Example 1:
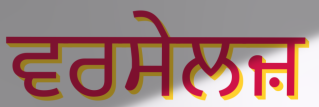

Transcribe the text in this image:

ਵਰਸੇਲਜ਼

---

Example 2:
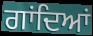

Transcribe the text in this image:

ਗਾਂਦਿਆਂ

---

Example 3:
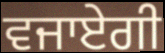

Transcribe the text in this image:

ਵਜਾਏਗੀ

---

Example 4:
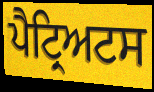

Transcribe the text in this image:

ਪੈਟ੍ਰਿਅਟਸ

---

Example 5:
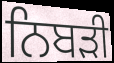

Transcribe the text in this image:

ਨਿਬੜੀ